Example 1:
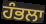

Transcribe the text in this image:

ਹੰਭਲਾ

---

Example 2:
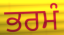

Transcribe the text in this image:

ਭਰਮੰ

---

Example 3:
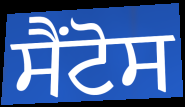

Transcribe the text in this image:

ਸੈਂਟੋਸ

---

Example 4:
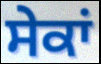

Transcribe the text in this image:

ਸੇਕਾਂ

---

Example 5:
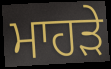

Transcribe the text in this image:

ਮਾਹੜੇ